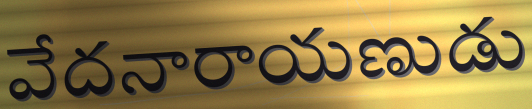
వేదనారాయణుడు